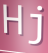
Hj